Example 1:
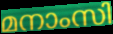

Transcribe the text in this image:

മനാംസി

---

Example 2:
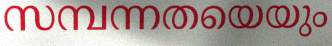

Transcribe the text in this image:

സമ്പന്നതയെയും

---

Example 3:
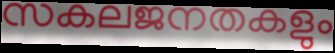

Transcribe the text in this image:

സകലജനതകളും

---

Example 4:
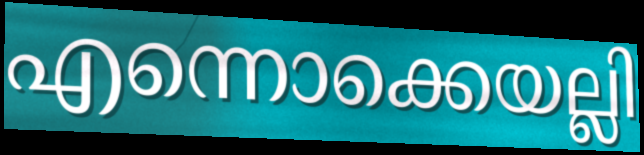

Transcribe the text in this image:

എന്നൊക്കെയല്ലി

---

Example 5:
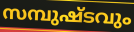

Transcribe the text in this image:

സമ്പുഷ്ടവും